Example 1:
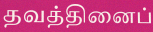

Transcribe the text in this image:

தவத்தினைப்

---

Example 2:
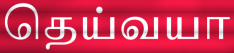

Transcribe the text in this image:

தெய்வயா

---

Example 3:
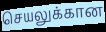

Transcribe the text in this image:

செயலுக்கான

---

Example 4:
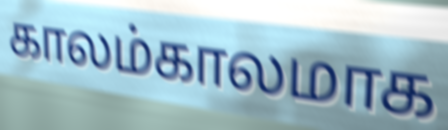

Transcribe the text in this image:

காலம்காலமாக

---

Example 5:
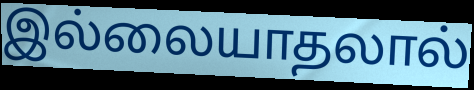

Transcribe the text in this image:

இல்லையாதலால்